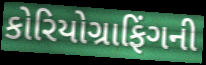
કોરિયોગ્રાફિંગની